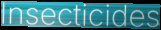
Insecticides